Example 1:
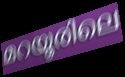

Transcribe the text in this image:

മറയൂരിലെ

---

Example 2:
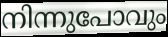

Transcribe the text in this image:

നിന്നുപോവും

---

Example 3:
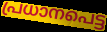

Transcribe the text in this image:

പ്രധാനപെട്ട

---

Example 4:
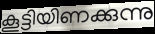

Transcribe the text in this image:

കൂട്ടിയിണക്കുന്നു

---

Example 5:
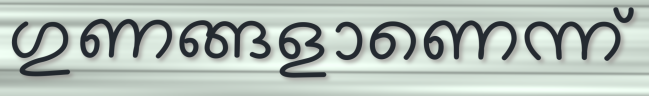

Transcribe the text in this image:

ഗുണങ്ങളാണെന്ന്